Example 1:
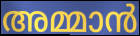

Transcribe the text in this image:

അമ്മാൻ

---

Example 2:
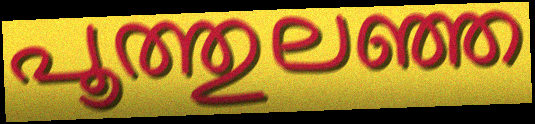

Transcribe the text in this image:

പൂത്തുലഞ്ഞ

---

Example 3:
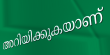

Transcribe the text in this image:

അറിയിക്കുകയാണ്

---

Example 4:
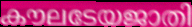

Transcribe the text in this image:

കൗലടേയജാതി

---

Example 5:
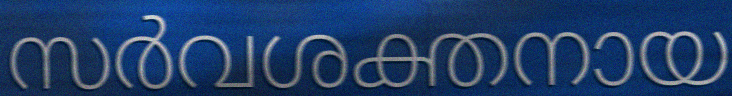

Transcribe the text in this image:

സർവശക്തനായ